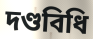
দণ্ডবিধি